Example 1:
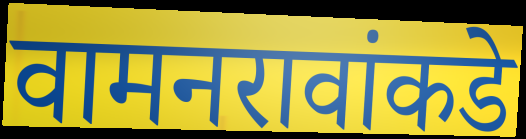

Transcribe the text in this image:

वामनरावांकडे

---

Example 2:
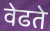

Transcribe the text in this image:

वेढते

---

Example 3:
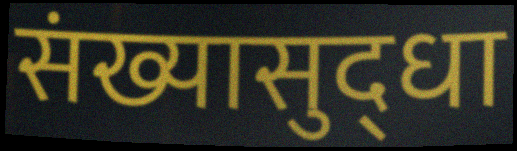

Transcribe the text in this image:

संख्यासुद्धा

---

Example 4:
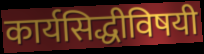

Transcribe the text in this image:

कार्यसिद्धीविषयी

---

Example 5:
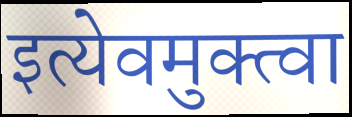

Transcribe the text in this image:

इत्येवमुक्त्वा